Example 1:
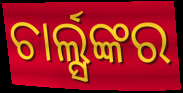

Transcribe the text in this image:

ଚାର୍ଲ୍ସଙ୍କର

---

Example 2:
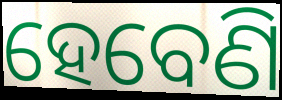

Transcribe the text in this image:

ହେବେଣି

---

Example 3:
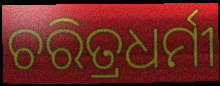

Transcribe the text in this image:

ଚରିତ୍ରଧର୍ମୀ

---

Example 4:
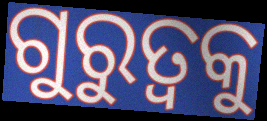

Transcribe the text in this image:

ଗୁରୁତ୍ୱକୁ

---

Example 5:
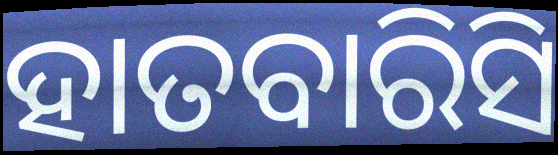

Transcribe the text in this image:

ହାତବାରିସି